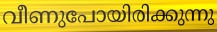
വീണുപോയിരിക്കുന്നു